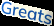
Greats